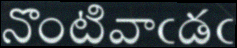
నొంటివాఁడఁ